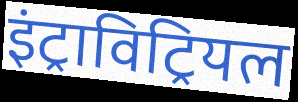
इंट्राविट्रियल